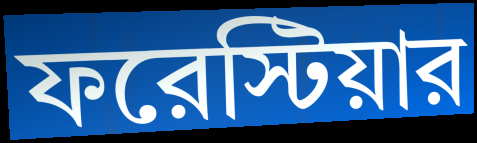
ফরেস্টিয়ার